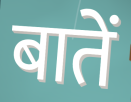
बातें